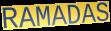
RAMADAS